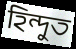
হিন্দুত